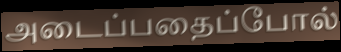
அடைப்பதைப்போல்